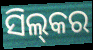
ସିଲ୍‍କର